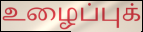
உழைப்புக்